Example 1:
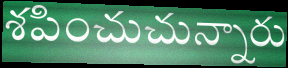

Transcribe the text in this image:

శపించుచున్నారు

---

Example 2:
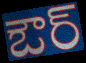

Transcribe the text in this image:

ఔర్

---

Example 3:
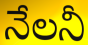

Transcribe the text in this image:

నేలనీ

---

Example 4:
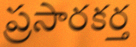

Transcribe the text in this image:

ప్రసారకర్త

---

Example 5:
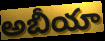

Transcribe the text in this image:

అబీయా